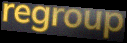
regroup